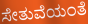
ಸೇತುವೆಯಂತೆ